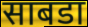
साबडा